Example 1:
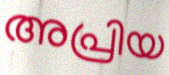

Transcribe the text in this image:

അപ്രിയ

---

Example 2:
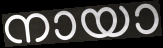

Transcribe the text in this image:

നായാ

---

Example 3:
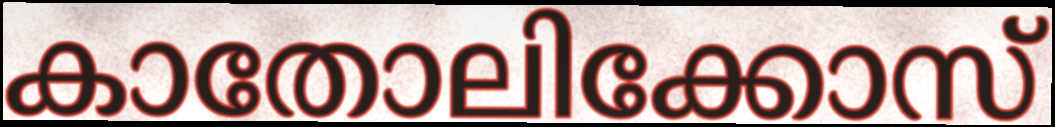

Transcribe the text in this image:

കാതോലിക്കോസ്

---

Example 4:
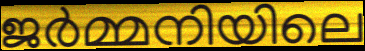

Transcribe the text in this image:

ജർമ്മനിയിലെ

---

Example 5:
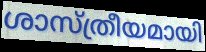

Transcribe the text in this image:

ശാസ്ത്രീയമായി